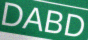
DABD